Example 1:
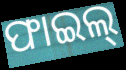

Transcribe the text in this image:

ଫାଇଲ୍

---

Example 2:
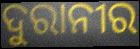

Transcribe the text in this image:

ଦୁରାନୀର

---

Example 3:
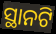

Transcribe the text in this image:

ସ୍ଥାନଟି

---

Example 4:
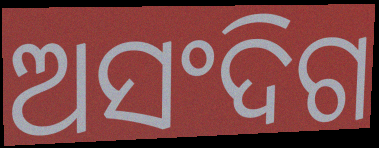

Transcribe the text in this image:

ଅସଂଦିଗ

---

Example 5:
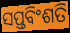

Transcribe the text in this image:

ସପ୍ତବିଂଶତି